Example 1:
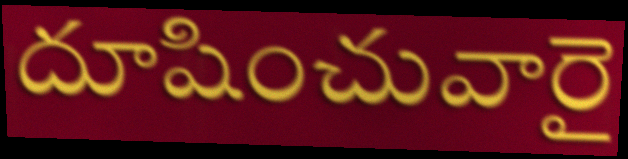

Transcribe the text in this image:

దూషించువారై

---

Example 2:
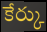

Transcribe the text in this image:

కేర్కు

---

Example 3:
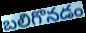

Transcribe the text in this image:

బలిగొనడం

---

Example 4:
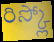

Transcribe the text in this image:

రిస్క్లో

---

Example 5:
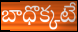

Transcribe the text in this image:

బాధొక్కటే